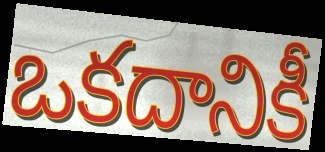
ఒకదానికీ